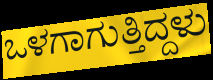
ಒಳಗಾಗುತ್ತಿದ್ದಳು